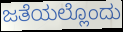
ಜತೆಯಲ್ಲೊಂದು